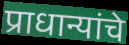
प्राधान्यांचे